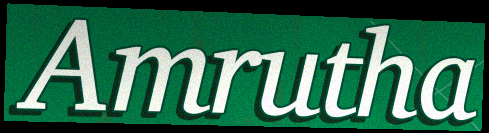
Amrutha